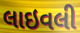
લાઇવલી